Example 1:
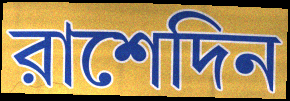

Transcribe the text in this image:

রাশেদিন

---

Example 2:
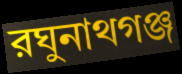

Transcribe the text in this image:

রঘুনাথগঞ্জ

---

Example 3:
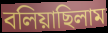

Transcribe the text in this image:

বলিয়াছিলাম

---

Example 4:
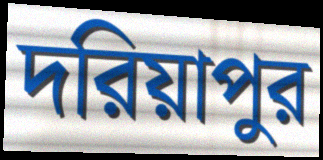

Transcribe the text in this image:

দরিয়াপুর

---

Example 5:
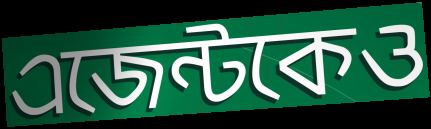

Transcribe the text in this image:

এজেন্টকেও